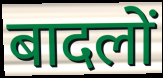
बादलों